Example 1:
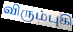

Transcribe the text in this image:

விரும்புகி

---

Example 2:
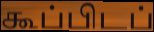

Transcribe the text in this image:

கூப்பிடப்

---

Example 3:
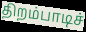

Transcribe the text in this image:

திறம்பாடிச்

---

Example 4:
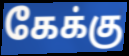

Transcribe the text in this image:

கேக்கு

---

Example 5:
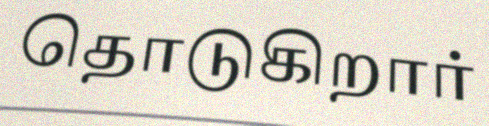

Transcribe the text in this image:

தொடுகிறார்